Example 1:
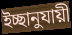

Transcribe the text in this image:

ইচ্ছানুযায়ী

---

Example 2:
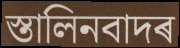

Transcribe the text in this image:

স্তালিনবাদৰ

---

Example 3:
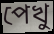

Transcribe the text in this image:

পেখু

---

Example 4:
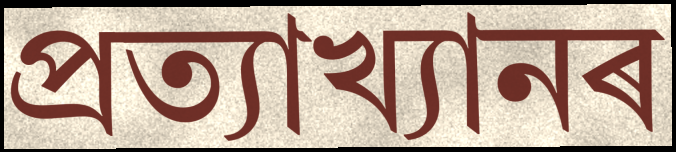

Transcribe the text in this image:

প্ৰত্যাখ্যানৰ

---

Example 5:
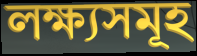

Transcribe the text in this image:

লক্ষ্যসমূহ